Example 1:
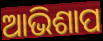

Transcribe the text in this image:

ଆଭିଶାପ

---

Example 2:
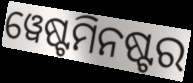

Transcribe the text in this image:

ୱେଷ୍ଟମିନଷ୍ଟର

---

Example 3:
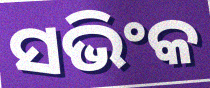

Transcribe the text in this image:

ସଭିଂକ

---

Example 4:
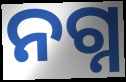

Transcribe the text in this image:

ନଗ୍ନ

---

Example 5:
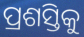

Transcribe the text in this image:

ପ୍ରଶସ୍ତିକୁ